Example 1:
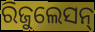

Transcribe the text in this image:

ରିଜୁଲେସନ୍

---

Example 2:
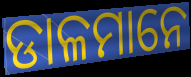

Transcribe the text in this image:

ଡାଳମାନେ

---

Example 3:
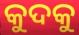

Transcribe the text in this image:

କୁଦକୁ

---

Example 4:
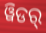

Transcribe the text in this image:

ୱିଡର୍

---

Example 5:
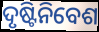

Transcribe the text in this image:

ଦୃଷ୍ଟିନିବେଶ